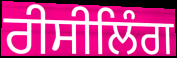
ਰੀਸੀਲਿੰਗ